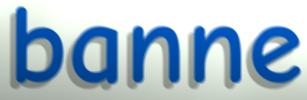
banne